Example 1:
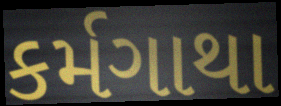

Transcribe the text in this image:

કર્મગાથા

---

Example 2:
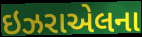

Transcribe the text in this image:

ઇઝરાએલના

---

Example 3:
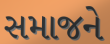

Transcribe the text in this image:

સમાજને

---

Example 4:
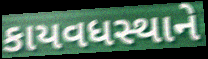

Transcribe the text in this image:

કાયવધસ્થાને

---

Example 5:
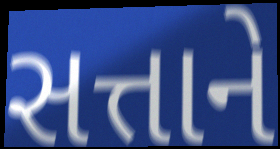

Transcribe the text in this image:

સત્તાને